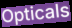
Opticals